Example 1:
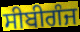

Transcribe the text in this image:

ਸੀਬੀਗੰਜ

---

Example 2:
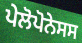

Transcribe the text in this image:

ਪੇਲੋਪੋਨੇਸਸ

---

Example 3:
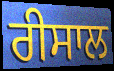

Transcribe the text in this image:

ਰੀਸਾਲ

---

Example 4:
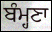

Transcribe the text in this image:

ਬੰਮ੍ਹਣਾ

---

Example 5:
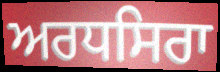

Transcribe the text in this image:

ਅਰਧਸਿਰਾ